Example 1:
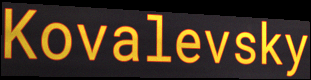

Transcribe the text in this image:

Kovalevsky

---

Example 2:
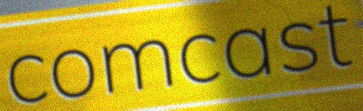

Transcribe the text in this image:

comcast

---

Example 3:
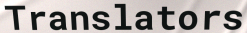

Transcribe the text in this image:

Translators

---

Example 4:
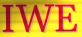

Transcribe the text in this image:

IWE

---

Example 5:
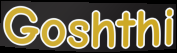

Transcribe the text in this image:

Goshthi